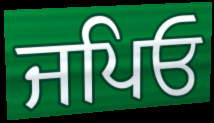
ਜਪਿਓ